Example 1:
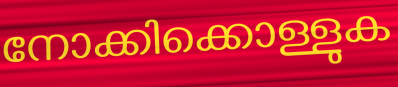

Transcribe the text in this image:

നോക്കിക്കൊള്ളുക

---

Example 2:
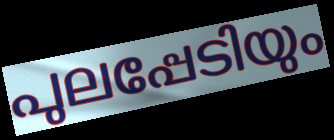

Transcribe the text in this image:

പുലപ്പേടിയും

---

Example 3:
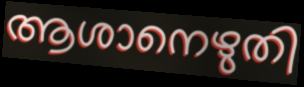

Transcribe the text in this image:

ആശാനെഴുതി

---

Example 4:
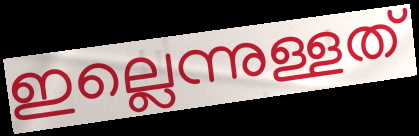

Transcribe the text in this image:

ഇല്ലെന്നുള്ളത്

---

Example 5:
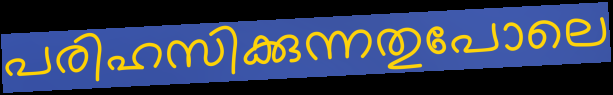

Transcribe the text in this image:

പരിഹസിക്കുന്നതുപോലെ